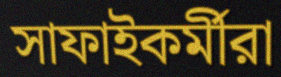
সাফাইকর্মীরা